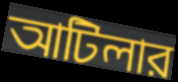
আটিলার